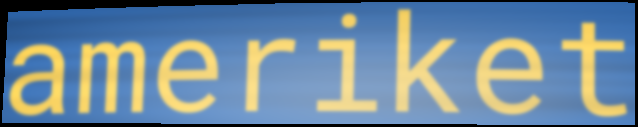
ameriket